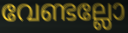
വേണ്ടല്ലോ